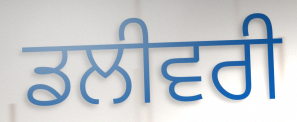
ਡਲੀਵਰੀ